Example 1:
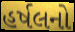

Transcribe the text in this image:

હર્ષલનો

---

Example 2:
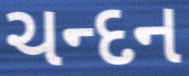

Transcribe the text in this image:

ચન્દન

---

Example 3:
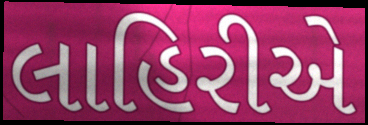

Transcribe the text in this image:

લાહિરીએ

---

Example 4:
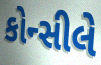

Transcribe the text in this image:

કોન્સીલે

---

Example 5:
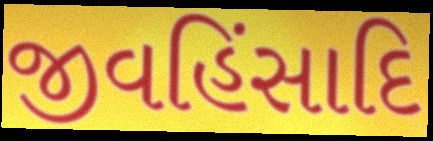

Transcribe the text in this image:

જીવહિંસાદિ